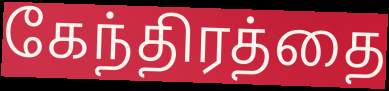
கேந்திரத்தை